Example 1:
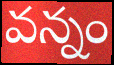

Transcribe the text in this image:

వన్నం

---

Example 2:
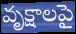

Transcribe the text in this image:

వృక్షాలపై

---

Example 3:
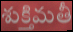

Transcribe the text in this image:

శుక్తిమతీ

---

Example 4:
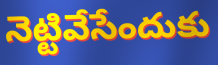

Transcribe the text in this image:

నెట్టివేసేందుకు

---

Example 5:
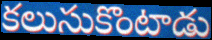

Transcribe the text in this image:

కలుసుకొంటాడు